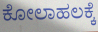
ಕೋಲಾಹಲಕ್ಕೆ